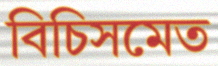
বিচিসমেত